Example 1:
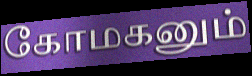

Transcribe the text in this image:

கோமகனும்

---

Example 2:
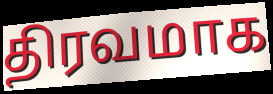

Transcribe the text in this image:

திரவமாக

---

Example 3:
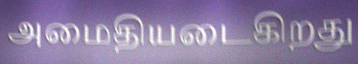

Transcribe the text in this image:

அமைதியடைகிறது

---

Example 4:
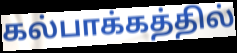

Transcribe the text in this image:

கல்பாக்கத்தில்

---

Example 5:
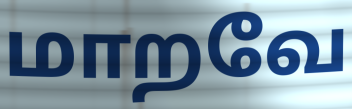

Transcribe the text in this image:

மாறவே